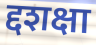
द्दशक्षा